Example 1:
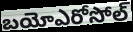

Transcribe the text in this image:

బయోఎరోసోల్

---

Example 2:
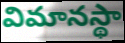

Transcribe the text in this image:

విమానస్థా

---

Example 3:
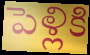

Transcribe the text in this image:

పెళ్లికి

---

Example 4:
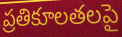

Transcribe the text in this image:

ప్రతికూలతలపై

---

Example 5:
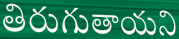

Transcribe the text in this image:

తిరుగుతాయని